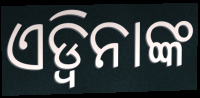
ଏଡ୍ୱିନାଙ୍କ